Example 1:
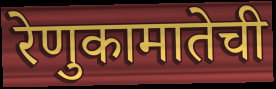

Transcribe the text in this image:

रेणुकामातेची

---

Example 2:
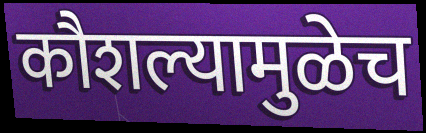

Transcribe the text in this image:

कौशल्यामुळेच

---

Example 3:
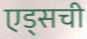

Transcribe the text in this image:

एड्सची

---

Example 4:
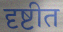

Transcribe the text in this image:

दृष्टीत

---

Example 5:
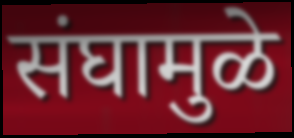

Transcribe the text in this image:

संघामुळे